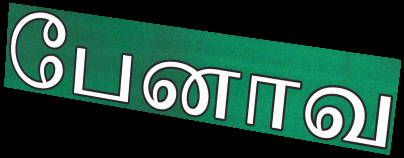
பேனாவ